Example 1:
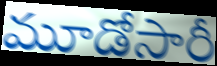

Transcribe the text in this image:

మూడోసారీ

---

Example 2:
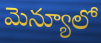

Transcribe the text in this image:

మెన్యూలో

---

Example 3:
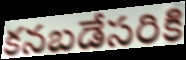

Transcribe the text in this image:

కనబడేసరికి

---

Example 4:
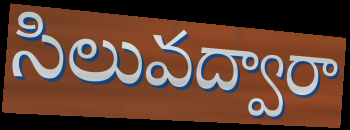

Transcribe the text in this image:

సిలువద్వారా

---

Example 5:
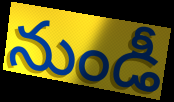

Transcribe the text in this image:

నుండీ